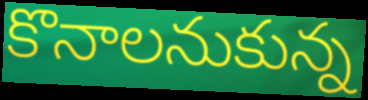
కొనాలనుకున్న